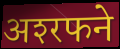
अश्रफने